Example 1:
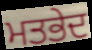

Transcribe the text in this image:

ਮਤਭੇਦ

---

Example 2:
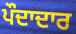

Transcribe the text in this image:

ਪੌਦਾਦਾਰ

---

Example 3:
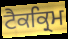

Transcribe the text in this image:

ਟੈਕਕ੍ਰਿਮ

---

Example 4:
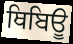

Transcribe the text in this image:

ਥਿਬਿਊ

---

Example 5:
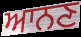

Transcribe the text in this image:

ਆਨਣ